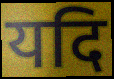
यदि